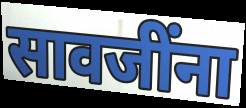
सावजींना